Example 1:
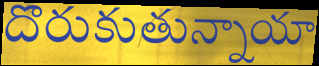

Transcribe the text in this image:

దొరుకుతున్నాయా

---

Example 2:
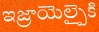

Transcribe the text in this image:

ఇజ్రాయెల్పైకి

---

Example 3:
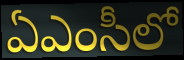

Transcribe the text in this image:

ఏఎంసీలో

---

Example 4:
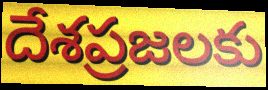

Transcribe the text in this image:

దేశప్రజలకు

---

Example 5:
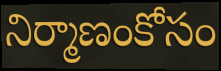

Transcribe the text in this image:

నిర్మాణంకోసం